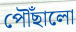
পৌঁছালো